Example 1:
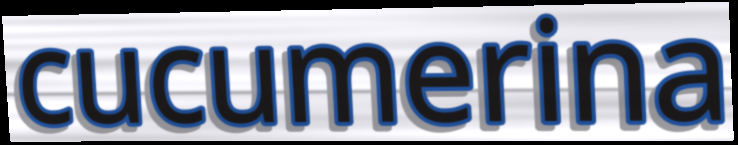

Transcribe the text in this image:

cucumerina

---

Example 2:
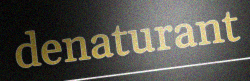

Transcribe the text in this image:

denaturant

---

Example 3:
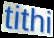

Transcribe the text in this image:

tithi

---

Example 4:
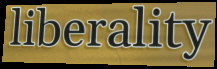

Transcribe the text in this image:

liberality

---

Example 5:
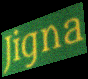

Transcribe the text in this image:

Jigna